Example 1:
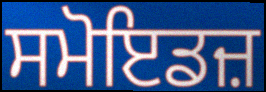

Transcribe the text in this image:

ਸਮੋਇਡਜ਼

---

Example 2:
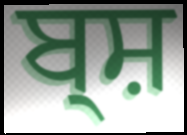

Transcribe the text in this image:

ਬ੍ਸ਼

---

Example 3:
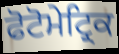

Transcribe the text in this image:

ਫੋਟੋਮੇਟ੍ਰਿਕ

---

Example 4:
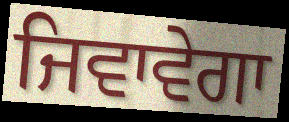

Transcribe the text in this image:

ਜਿਵਾਵੇਗਾ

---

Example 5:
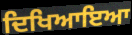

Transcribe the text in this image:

ਦਿਖਿਆਇਆ